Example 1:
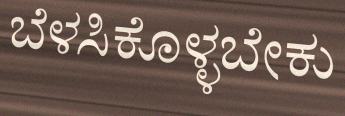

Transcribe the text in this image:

ಬೆಳಸಿಕೊಳ್ಳಬೇಕು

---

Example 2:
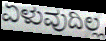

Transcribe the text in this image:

ಏಳುವುದಿಲ್ಲ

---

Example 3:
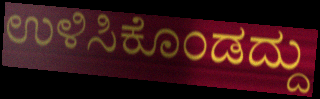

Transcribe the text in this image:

ಉಳಿಸಿಕೊಂಡದ್ದು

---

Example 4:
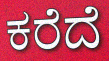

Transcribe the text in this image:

ಕರೆದೆ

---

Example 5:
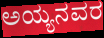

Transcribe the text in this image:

ಅಯ್ಯನವರ